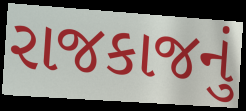
રાજકાજનું